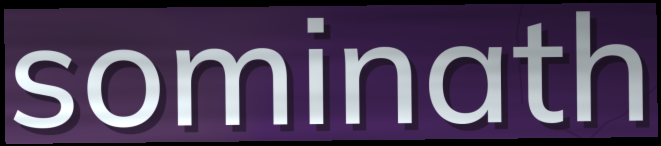
sominath